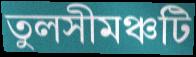
তুলসীমঞ্চটি